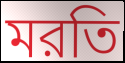
মরতি